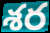
శర